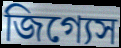
জিগ্যেস